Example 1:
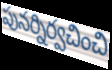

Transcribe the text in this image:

పునర్నిర్వచించి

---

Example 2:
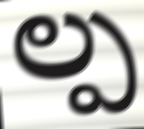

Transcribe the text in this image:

ల్ప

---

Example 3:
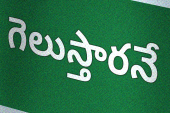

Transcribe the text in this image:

గెలుస్తారనే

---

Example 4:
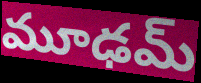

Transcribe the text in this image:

మూఢమ్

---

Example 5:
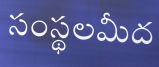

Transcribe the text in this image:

సంస్థలమీద